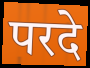
परदे